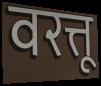
वरत्तू